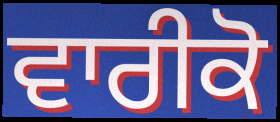
ਵਾਰੀਕੋ